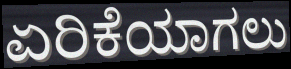
ಏರಿಕೆಯಾಗಲು